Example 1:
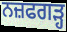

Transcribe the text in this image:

ਨਜ਼ਫਗੜ੍ਹ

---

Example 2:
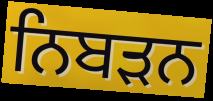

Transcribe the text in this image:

ਨਿਬੜਨ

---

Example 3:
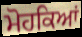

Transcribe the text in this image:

ਮੋਹਕਿਆਂ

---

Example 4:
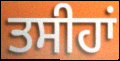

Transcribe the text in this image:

ਤਸੀਹਾਂ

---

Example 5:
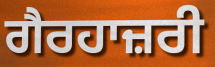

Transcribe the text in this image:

ਗੈਰਹਾਜ਼ਰੀ